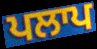
ਪਲਾਪ